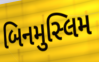
બિનમુસ્લિમ